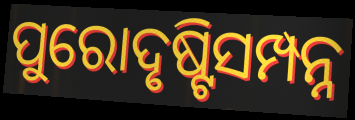
ପୁରୋଦୃଷ୍ଟିସମ୍ପନ୍ନ